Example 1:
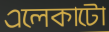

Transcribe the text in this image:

এলেকাটো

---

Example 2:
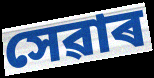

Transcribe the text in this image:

সেৱাৰ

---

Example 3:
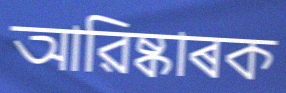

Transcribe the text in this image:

আৱিষ্কাৰক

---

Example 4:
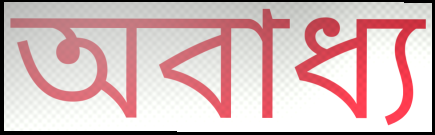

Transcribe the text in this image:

অবাধ্য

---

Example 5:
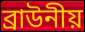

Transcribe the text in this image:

ব্ৰাউনীয়